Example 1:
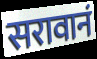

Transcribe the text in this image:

सरावानं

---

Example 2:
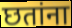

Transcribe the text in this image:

छतांना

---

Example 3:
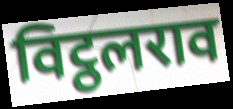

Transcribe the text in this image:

विट्ठलराव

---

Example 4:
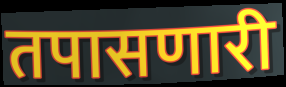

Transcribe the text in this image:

तपासणारी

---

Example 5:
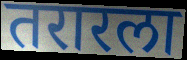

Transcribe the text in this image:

तरारला